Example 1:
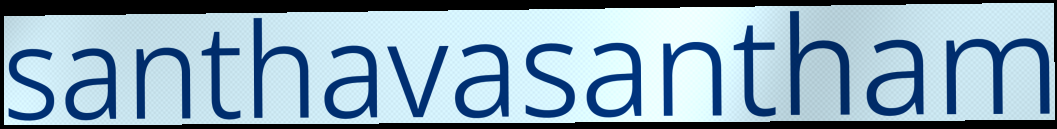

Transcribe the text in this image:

santhavasantham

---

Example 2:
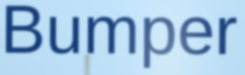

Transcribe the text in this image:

Bumper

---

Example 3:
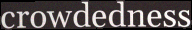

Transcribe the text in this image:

crowdedness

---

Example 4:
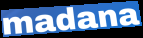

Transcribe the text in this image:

madana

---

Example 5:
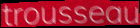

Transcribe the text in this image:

trousseau